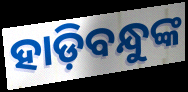
ହାଡ଼ିବନ୍ଧୁଙ୍କ